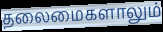
தலைமைகளாலும்